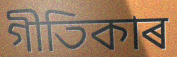
গীতিকাৰ